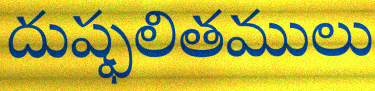
దుష్ఫలితములు